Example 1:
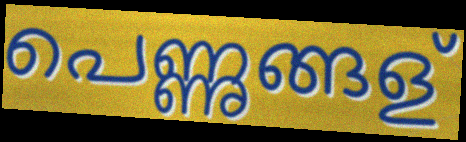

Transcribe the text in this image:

പെണ്ണുങ്ങള്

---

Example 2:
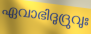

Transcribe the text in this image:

ഏവാഭിദുദ്രുവുഃ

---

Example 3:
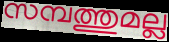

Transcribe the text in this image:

സമ്പത്തുമല്ല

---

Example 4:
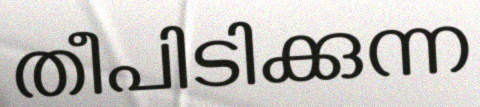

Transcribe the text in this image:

തീപിടിക്കുന്ന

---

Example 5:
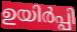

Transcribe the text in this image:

ഉയിർപ്പി